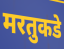
मरतुकडे